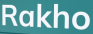
Rakho